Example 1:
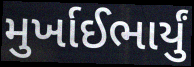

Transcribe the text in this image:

મુર્ખાઈભાર્યું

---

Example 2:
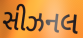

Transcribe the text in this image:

સીઝનલ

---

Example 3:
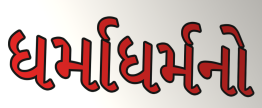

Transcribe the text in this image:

ધર્માધર્મનો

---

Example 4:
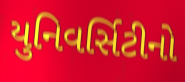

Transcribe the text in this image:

યુનિવર્સિટીનો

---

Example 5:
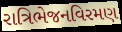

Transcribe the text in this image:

રાત્રિભેજનવિરમણ